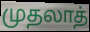
முதலாத்